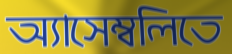
অ্যাসেম্বলিতে